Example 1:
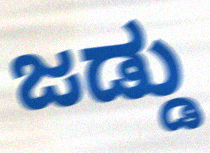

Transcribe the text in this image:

ಜಡ್ಡು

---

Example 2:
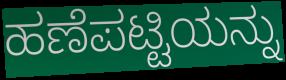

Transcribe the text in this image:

ಹಣೆಪಟ್ಟಿಯನ್ನು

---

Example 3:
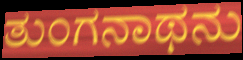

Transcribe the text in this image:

ತುಂಗನಾಥನು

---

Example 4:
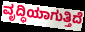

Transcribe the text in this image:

ವೃದ್ಧಿಯಾಗುತ್ತಿದೆ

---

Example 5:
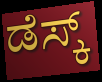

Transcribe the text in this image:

ಡೆಸ್ಕ್